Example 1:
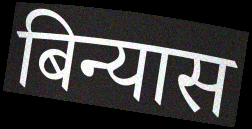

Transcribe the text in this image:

बिन्यास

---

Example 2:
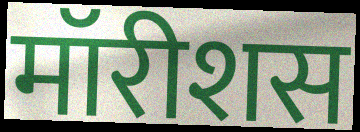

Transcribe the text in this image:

मॉरीशस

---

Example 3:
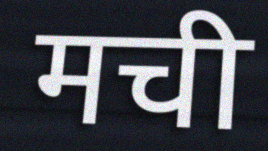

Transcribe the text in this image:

मची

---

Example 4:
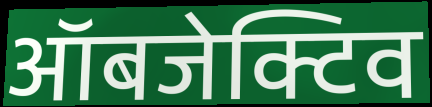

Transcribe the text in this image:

ऑबजेक्टिव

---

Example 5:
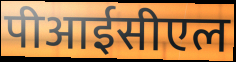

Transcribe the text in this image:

पीआईसीएल